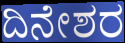
ದಿನೇಶರ